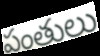
పంతులు